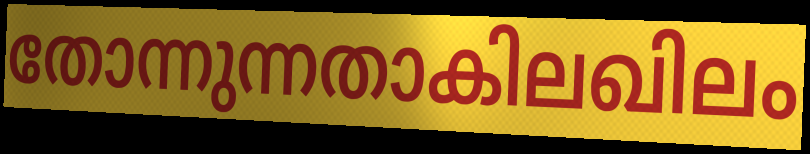
തോന്നുന്നതാകിലഖിലം